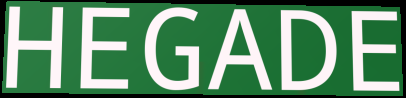
HEGADE